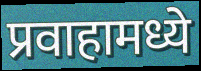
प्रवाहामध्ये